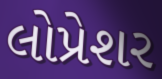
લોપ્રેશર